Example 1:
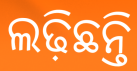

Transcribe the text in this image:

ଲଢ଼ିଛନ୍ତି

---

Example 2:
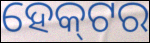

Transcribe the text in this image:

ହେକ୍‌ଟର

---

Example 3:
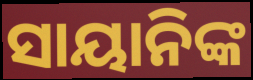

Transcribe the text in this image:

ସାୟାନିଙ୍କ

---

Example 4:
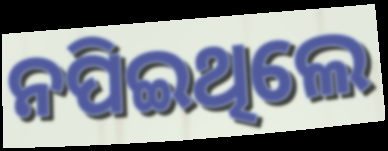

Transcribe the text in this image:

ନପିଇଥିଲେ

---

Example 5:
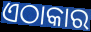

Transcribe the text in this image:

ଏଠାକାର